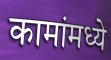
कामांमध्ये